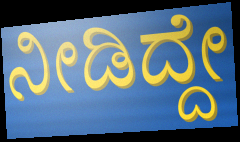
ನೀಡಿದ್ದೇ